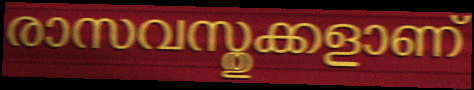
രാസവസ്തുക്കളാണ്